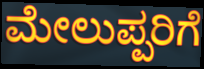
ಮೇಲುಪ್ಪರಿಗೆ